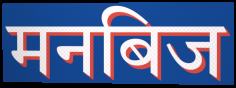
मनबिज